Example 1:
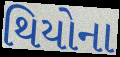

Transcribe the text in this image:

થિયોના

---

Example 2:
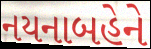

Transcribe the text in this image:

નયનાબહેને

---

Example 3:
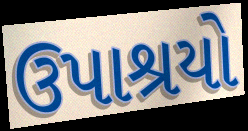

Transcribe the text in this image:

ઉપાશ્રયો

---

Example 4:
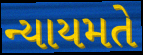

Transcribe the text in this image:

ન્યાયમતે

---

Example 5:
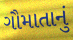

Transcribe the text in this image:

ગૌમાતાનું